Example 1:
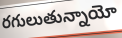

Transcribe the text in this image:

రగులుతున్నాయో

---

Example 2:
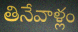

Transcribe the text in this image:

తినేవాళ్లం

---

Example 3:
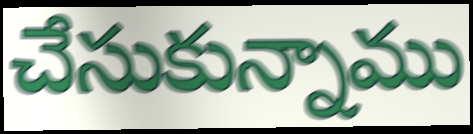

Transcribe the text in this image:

చేసుకున్నాము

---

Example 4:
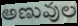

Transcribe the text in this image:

అణువుల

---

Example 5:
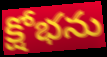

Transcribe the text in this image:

క్షోభను